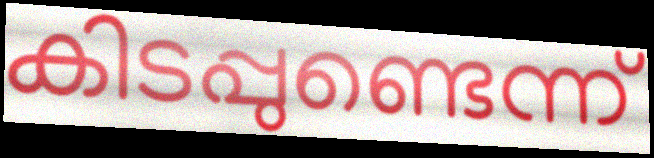
കിടപ്പുണ്ടെന്ന്